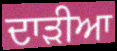
ਦਾੜੀਆ